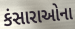
કંસારાઓના